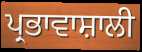
ਪ੍ਰਭਾਵਾਸ਼ਾਲੀ